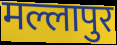
मल्लापुर